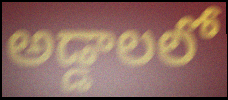
అడ్డాలలో